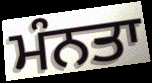
ਮੰਨਤਾ